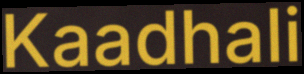
Kaadhali